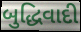
બુદ્ધિવાદી